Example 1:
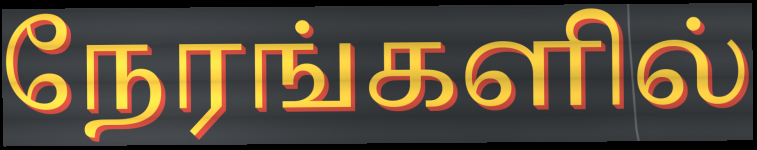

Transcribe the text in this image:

நேரங்களில்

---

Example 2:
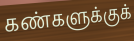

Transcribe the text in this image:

கண்களுக்குக்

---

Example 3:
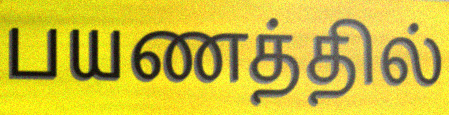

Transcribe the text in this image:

பயணத்தில்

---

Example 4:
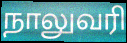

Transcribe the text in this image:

நாலுவரி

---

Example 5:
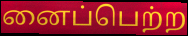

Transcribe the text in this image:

னைப்பெற்ற